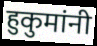
हुकुमांनी